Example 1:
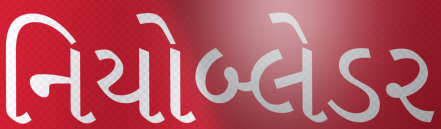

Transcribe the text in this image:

નિયોબ્લેડર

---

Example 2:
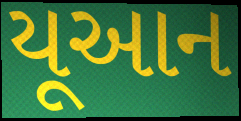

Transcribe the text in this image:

યૂઆન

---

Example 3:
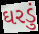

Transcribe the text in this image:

ઘરડું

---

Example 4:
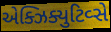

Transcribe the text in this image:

એક્ઝિક્યુટિવ્સે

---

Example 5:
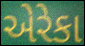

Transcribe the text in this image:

એરેકા